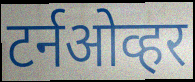
टर्नओव्हर